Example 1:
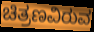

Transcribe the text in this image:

ಚಿತ್ರಣವಿರುವ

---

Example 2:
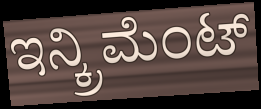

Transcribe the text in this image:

ಇನ್ಕ್ರಿಮೆಂಟ್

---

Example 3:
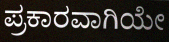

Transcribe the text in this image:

ಪ್ರಕಾರವಾಗಿಯೇ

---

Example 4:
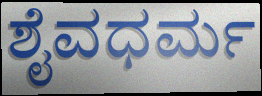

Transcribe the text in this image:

ಶೈವಧರ್ಮ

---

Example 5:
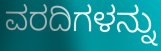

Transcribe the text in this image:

ವರದಿಗಳನ್ನು